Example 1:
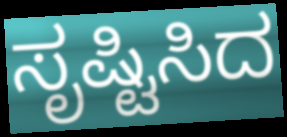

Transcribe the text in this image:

ಸೃಷ್ಟಿಸಿದ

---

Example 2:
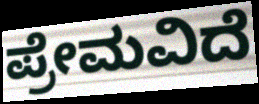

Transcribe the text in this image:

ಪ್ರೇಮವಿದೆ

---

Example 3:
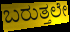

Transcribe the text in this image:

ಬರುತ್ತಲೇ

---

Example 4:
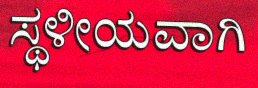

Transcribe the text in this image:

ಸ್ಥಳೀಯವಾಗಿ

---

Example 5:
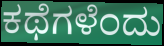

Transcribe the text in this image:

ಕಥೆಗಳೆಂದು